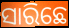
ସାରିଛେ